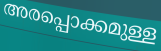
അരപ്പൊക്കമുള്ള